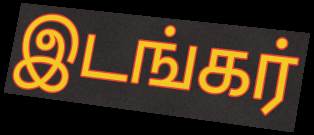
இடங்கர்